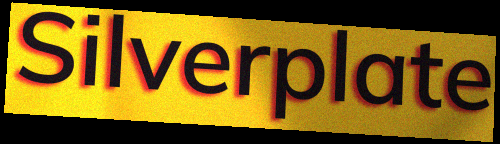
Silverplate